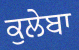
ਕੁਲੇਬਾ